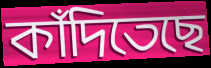
কাঁদিতেছে